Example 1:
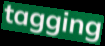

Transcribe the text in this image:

tagging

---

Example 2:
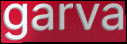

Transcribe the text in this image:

garva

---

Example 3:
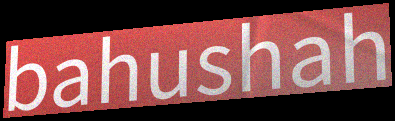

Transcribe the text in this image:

bahushah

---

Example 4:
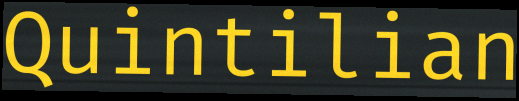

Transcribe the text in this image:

Quintilian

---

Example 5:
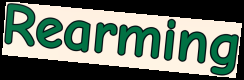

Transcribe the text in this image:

Rearming